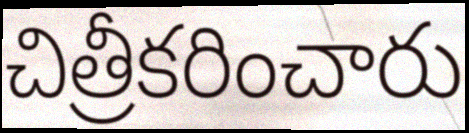
చిత్రీకరించారు